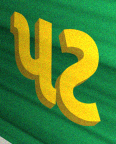
પટ